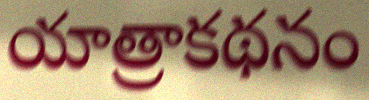
యాత్రాకథనం